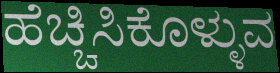
ಹೆಚ್ಚಿಸಿಕೊಳ್ಳುವ